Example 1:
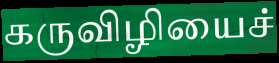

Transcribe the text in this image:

கருவிழியைச்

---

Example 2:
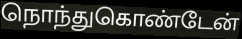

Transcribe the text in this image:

நொந்துகொண்டேன்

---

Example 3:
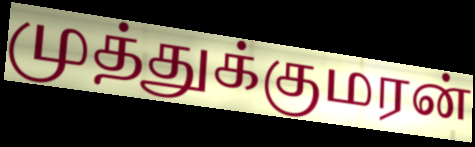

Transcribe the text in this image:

முத்துக்குமரன்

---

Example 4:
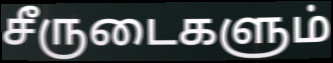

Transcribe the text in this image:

சீருடைகளும்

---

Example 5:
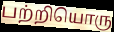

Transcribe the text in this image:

பற்றியொரு